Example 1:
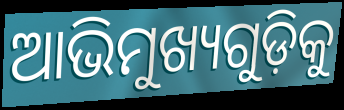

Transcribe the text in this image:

ଆଭିମୁଖ୍ୟଗୁଡ଼ିକୁ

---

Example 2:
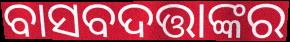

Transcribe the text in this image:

ବାସବଦତ୍ତାଙ୍କର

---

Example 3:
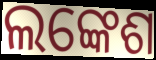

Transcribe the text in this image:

ଲଙ୍କେଶ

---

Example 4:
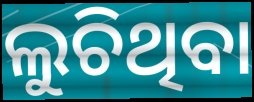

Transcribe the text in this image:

ଲୁଚିଥିବା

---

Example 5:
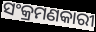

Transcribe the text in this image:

ସଂକ୍ରମଣକାରୀ